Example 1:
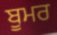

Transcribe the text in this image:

ਬੂਮਰ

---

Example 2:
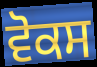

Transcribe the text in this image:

ਵੋਕਸ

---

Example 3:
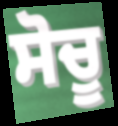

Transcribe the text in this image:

ਸੋਚੂ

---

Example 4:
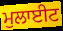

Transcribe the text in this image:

ਮੁਲਾਈਟ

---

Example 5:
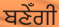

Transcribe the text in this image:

ਬਣੇਁਗੀ